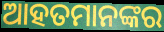
ଆହତମାନଙ୍କର